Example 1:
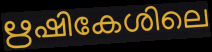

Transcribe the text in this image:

ഋഷികേശിലെ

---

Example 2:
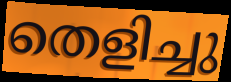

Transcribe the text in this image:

തെളിച്ചു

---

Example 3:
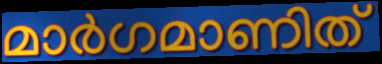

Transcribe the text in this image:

മാർഗമാണിത്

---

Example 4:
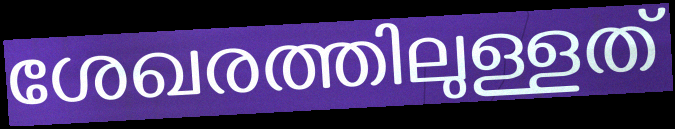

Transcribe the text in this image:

ശേഖരത്തിലുള്ളത്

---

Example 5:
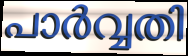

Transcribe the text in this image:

പാർവ്വതി